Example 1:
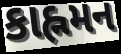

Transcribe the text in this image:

કાહ્નમન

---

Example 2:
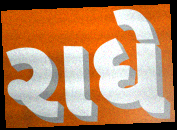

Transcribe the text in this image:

રાધે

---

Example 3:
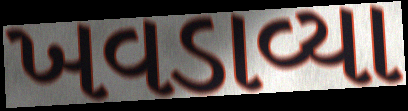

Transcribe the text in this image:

ખવડાવ્યા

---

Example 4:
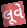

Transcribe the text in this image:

લૂવે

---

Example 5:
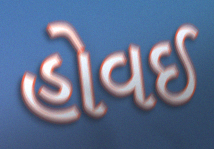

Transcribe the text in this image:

હોવઈ